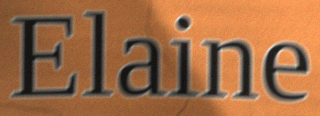
Elaine